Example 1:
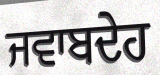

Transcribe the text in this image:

ਜਵਾਬਦੇਹ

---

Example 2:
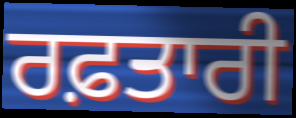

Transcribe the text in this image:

ਰਫ਼ਤਾਰੀ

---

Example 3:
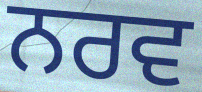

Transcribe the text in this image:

ਨਰਵ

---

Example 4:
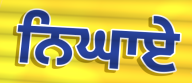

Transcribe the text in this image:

ਨਿਘਾਏ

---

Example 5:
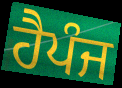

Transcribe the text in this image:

ਹੈਪੰਜ